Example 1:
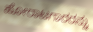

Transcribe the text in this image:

ಹೋರಾಟಗಾರರನ್ನು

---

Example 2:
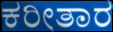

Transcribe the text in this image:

ಕರೀತಾರ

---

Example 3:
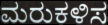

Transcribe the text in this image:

ಮರುಕಳಿಸ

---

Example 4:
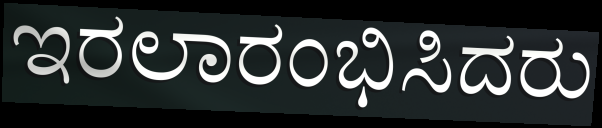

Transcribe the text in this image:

ಇರಲಾರಂಭಿಸಿದರು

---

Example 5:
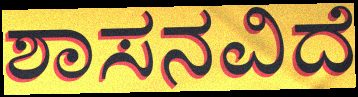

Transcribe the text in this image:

ಶಾಸನವಿದೆ